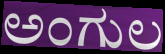
ಅಂಗುಲ